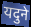
यदुने